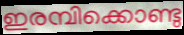
ഇരമ്പിക്കൊണ്ടു